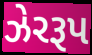
ઝેરરૂપ